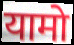
यामो